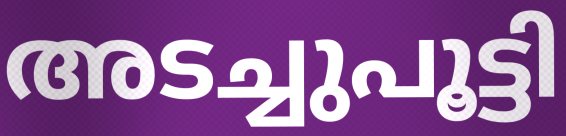
അടച്ചുപൂട്ടി